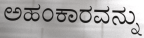
ಅಹಂಕಾರವನ್ನು